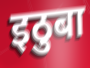
इठुबा